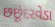
છછૂંદરવેડા